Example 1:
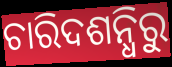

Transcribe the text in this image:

ଚାରିଦଶନ୍ଧିରୁ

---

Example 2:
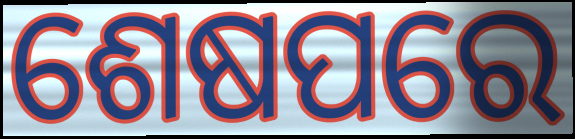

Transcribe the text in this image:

ଶେଷପରେ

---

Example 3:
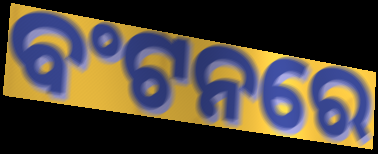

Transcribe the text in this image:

ବଂଟନରେ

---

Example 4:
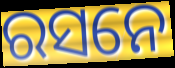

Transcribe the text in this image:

ରସନେ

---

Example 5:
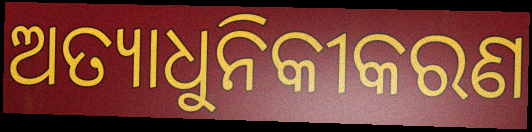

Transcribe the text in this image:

ଅତ୍ୟାଧୁନିକୀକରଣ